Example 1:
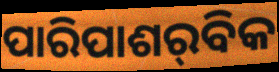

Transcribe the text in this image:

ପାରିପାଶର୍‌ବିକ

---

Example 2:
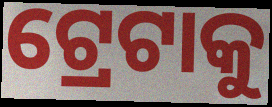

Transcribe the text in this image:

ଟ୍ରେଟାକୁ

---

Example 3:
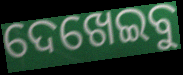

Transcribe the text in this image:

ଦେଖେଇବୁ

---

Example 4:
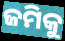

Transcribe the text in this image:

ଜମିକୁ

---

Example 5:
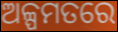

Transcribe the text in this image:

ଅଳ୍ପମତରେ